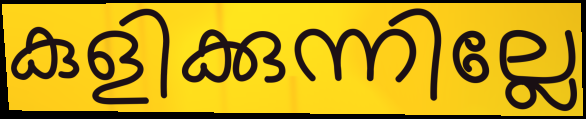
കുളിക്കുന്നില്ലേ